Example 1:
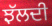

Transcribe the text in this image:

ਝੱਲਦੀ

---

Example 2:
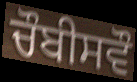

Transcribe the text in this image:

ਚੌਬੀਸਵੌ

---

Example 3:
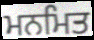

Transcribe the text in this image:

ਮਨਮਿਤ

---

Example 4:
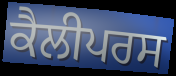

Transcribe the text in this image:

ਕੈਲੀਪਰਸ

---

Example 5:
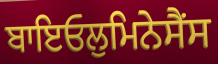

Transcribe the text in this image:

ਬਾਇਓਲੁਮਿਨੇਸੈਂਸ